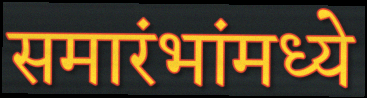
समारंभांमध्ये